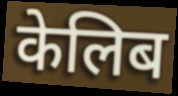
केलिब